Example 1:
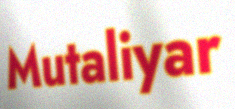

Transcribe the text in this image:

Mutaliyar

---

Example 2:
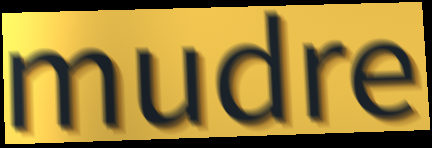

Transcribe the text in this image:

mudre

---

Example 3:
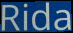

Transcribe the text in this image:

Rida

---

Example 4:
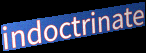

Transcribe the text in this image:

indoctrinate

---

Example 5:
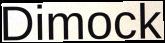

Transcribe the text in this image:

Dimock